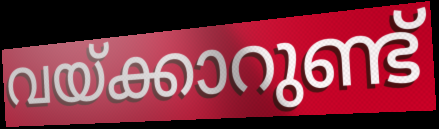
വയ്ക്കാറുണ്ട്